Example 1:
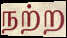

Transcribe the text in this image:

நற்ற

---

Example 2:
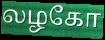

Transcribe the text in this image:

லழகோ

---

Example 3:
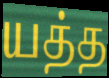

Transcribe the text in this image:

யத்த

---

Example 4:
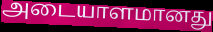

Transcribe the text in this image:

அடையாளமானது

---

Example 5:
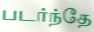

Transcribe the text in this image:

படர்ந்தே